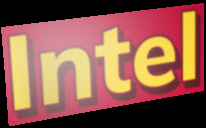
Intel